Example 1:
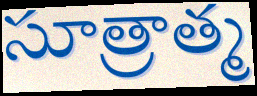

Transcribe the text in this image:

సూత్రాత్మ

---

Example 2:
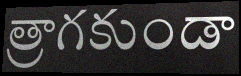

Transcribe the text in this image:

త్రాగకుండా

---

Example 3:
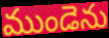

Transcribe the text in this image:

ముండెను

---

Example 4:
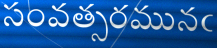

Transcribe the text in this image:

సంవత్సరమునఁ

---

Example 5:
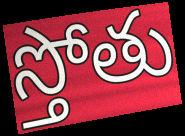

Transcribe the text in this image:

స్తోతు